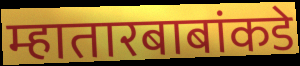
म्हातारबाबांकडे